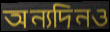
অন্যদিনও